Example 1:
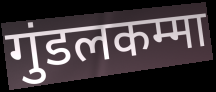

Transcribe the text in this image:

गुंडलकम्मा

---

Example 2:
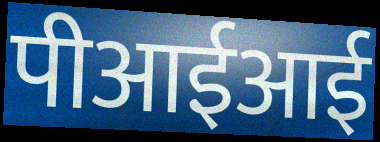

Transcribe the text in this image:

पीआईआई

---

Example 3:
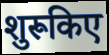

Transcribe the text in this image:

शुरूकिए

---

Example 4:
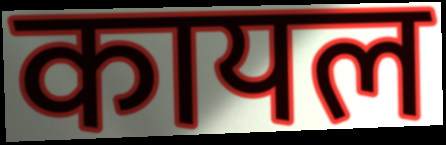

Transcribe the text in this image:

कायल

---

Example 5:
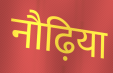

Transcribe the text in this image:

नौढ़िया